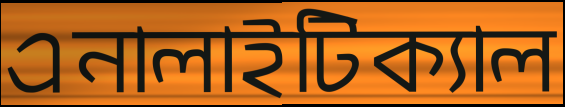
এনালাইটিক্যাল